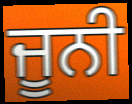
ਜੂਨੀ